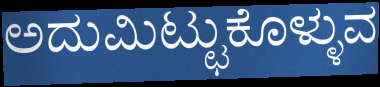
ಅದುಮಿಟ್ಟುಕೊಳ್ಳುವ